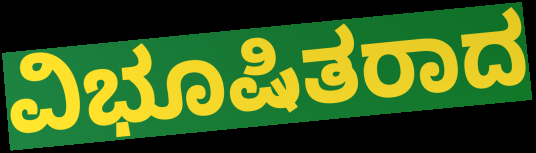
ವಿಭೂಷಿತರಾದ